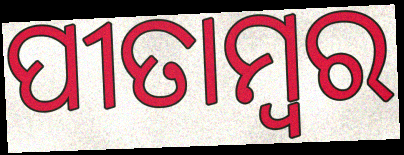
ପୀତାମ୍ୱର